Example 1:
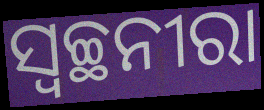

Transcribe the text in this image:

ସ୍ୱଚ୍ଛନୀରା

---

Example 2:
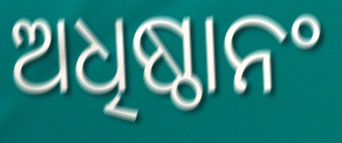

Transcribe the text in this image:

ଅଧିଷ୍ଠାନଂ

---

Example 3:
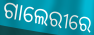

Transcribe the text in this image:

ଗାଲେରୀରେ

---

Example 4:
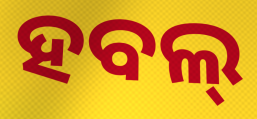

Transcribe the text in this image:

ହବଲ୍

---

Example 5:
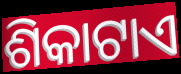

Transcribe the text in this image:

ଶିକାଟାଏ